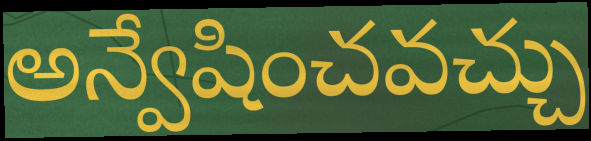
అన్వేషించవచ్చు